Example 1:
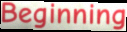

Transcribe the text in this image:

Beginning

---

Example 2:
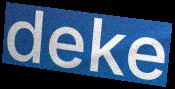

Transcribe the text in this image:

deke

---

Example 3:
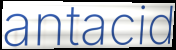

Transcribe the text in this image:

antacid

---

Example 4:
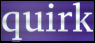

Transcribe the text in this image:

quirk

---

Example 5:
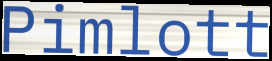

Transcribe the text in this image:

Pimlott